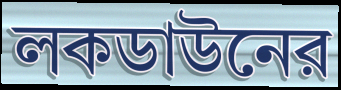
লকডাউনের